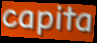
capita